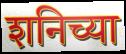
शनिच्या